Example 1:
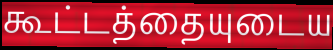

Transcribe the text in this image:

கூட்டத்தையுடைய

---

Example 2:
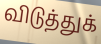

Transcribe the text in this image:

விடுத்துக்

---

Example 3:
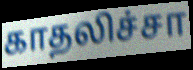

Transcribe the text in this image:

காதலிச்சா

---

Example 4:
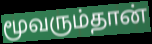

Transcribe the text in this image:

மூவரும்தான்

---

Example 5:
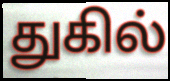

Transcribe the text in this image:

துகில்